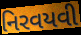
નિરવયવી